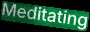
Meditating